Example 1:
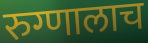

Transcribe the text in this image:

रुग्णालाच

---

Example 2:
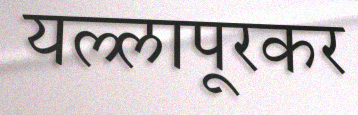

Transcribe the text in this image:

यल्लापूरकर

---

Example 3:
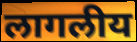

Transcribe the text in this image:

लागलीय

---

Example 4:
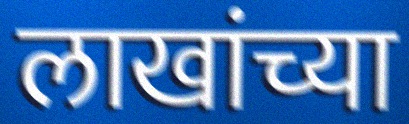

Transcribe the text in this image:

लाखांच्या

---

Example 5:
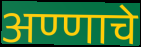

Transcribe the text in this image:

अण्णाचे